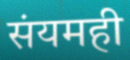
संयमही